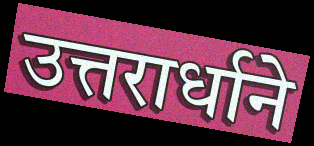
उत्तरार्धाने